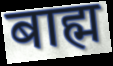
बाह्म